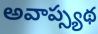
అవాప్స్యథ